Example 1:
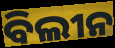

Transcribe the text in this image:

ବିଲୀନ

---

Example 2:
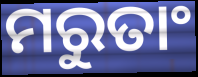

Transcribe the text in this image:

ମରୁତାଂ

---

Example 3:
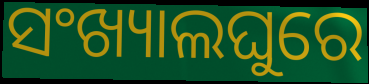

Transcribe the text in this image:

ସଂଖ୍ୟାଲଘୁରେ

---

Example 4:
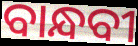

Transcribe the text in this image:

ବାନ୍ଧବୀ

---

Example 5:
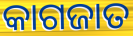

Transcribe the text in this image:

କାଗଜାତ